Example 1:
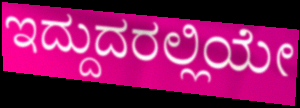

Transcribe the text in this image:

ಇದ್ದುದರಲ್ಲಿಯೇ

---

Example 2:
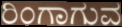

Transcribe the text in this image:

ರಿಂಗಾಗುವ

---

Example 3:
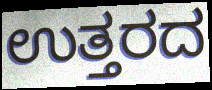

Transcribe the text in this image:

ಉತ್ತರದ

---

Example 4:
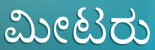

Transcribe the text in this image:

ಮೀಟರು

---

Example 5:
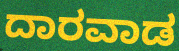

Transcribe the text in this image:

ದಾರವಾಡ